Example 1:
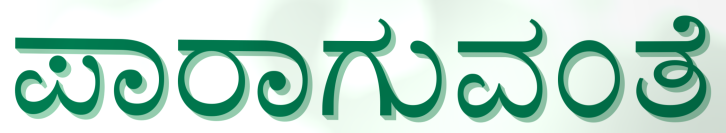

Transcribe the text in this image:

ಪಾರಾಗುವಂತೆ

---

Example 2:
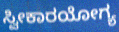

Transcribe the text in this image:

ಸ್ವೀಕಾರಯೋಗ್ಯ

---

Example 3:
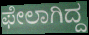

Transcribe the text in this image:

ಫೇಲಾಗಿದ್ದ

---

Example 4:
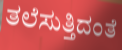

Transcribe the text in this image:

ತಲೆಸುತ್ತಿದಂತೆ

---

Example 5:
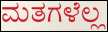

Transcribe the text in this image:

ಮತಗಳೆಲ್ಲ